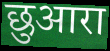
छुआरा